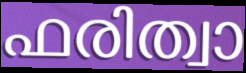
ഫരിത്വാ